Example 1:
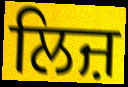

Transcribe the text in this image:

ਲਿਜ਼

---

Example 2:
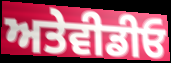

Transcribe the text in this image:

ਅਤੇਵੀਡੀਓ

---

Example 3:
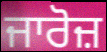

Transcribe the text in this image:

ਜਾਰੋਜ਼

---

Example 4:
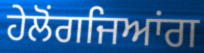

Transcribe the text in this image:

ਹੇਲੋਂਗਜਿਆਂਗ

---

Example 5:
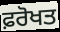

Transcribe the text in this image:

ਫ਼ਰੋਖਤ